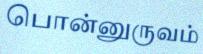
பொன்னுருவம்